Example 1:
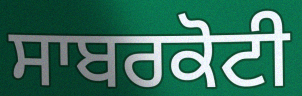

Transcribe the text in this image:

ਸਾਬਰਕੋਟੀ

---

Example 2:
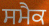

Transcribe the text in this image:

ਸਮੈਕ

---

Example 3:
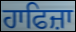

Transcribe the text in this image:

ਹਾਫਿਜ਼ਾ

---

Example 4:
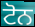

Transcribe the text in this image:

ਟੋਨ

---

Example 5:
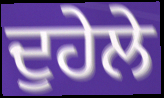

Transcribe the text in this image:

ਦੁਹੇਲੇ